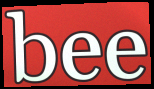
bee